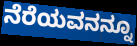
ನೆರೆಯವನನ್ನೂ